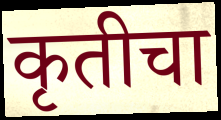
कृतीचा